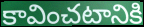
కావించటానికి